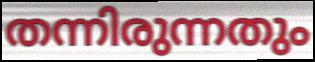
തന്നിരുന്നതും